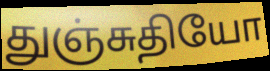
துஞ்சுதியோ